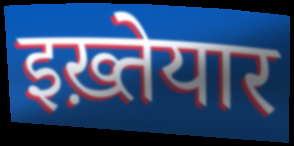
इख़्तेयार